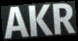
AKR